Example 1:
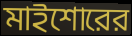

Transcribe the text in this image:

মাইশোরের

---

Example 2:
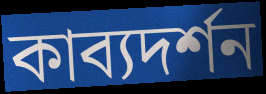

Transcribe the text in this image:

কাব্যদর্শন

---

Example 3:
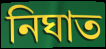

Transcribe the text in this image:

নিঘাত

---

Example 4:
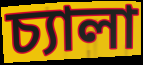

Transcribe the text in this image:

চ্যালা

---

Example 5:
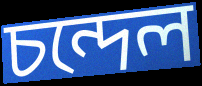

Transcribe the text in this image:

চন্দেল